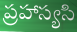
ప్రహాస్యసి